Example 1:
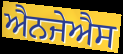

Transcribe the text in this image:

ਐਨਜੇਐਸ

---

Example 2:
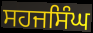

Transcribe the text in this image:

ਸਹਜਸਿੰਘ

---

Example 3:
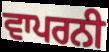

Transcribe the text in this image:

ਵਾਪਰਨੀ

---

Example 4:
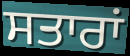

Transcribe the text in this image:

ਸਤਾਰਾਂ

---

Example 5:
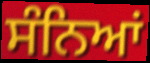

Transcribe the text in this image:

ਸੰਨਿਆਂ